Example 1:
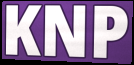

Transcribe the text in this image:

KNP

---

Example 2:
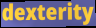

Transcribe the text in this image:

dexterity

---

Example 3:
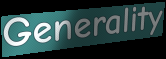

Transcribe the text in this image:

Generality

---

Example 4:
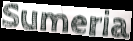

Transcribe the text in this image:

Sumeria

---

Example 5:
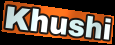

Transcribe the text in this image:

Khushi